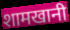
शामखानी